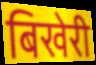
बिखेरी